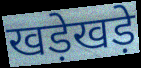
खड़ेखड़े